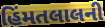
હિંમતલાલની